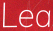
Lea